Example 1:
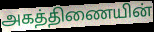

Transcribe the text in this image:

அகத்திணையின்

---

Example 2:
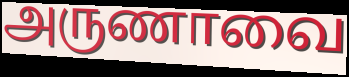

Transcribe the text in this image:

அருணாவை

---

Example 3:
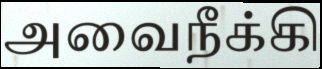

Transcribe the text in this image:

அவைநீக்கி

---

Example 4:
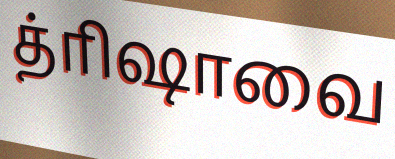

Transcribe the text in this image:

த்ரிஷாவை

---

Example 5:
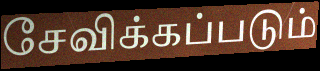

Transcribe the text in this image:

சேவிக்கப்படும்